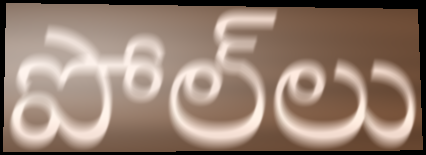
పోల్‌లు